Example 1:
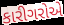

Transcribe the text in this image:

કારીગરોએ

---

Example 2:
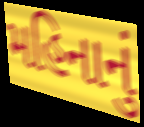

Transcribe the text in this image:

મહિનાનું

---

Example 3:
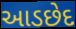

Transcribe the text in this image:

આડછેદ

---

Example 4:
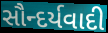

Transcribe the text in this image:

સૌન્દર્યવાદી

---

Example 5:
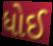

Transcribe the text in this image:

ધોઈ